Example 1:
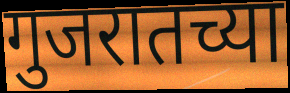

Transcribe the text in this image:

गुजरातच्या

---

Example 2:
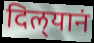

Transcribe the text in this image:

दिल्यानं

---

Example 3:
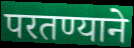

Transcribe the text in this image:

परतण्याने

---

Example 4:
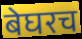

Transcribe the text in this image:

बेघरच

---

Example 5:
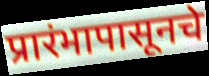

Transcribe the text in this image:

प्रारंभापासूनचे